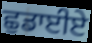
ਛੁਡਾਈਏ